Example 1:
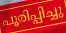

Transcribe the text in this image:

പൂരിപ്പിച്ചു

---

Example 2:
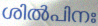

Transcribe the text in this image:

ശിൽപിനഃ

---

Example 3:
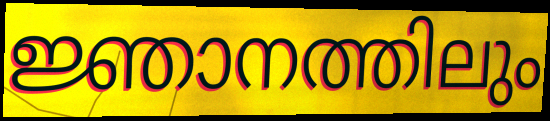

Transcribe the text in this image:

ജ്ഞാനത്തിലും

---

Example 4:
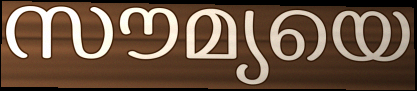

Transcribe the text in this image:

സൗമ്യയെ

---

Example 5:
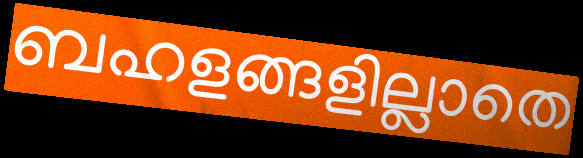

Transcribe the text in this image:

ബഹളങ്ങളില്ലാതെ